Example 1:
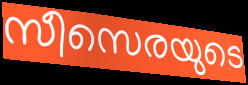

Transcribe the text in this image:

സീസെരയുടെ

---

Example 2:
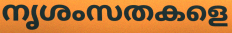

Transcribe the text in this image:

നൃശംസതകളെ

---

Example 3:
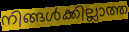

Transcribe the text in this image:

നിങ്ങൾക്കില്ലാത്ത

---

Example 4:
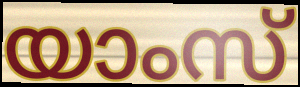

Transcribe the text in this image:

യാംസ്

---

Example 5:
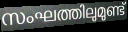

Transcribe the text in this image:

സംഘത്തിലുമുണ്ട്